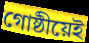
গোষ্ঠীয়েই